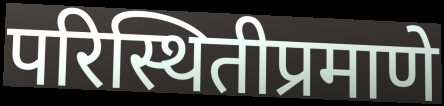
परिस्थितीप्रमाणे